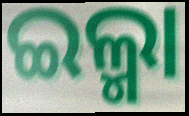
ଇଲ୍ମା